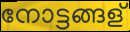
നോട്ടങ്ങള്